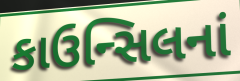
કાઉન્સિલનાં